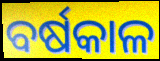
ବର୍ଷକାଳ